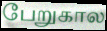
பேறுகால